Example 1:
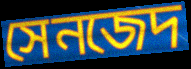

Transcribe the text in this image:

সেনজেদ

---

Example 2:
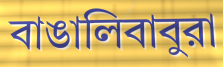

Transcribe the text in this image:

বাঙালিবাবুরা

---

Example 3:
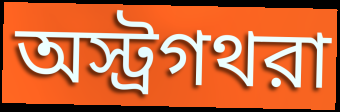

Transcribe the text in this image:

অস্ট্রগথরা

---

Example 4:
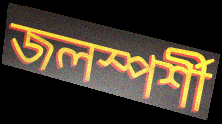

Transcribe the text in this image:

জলস্পর্শী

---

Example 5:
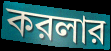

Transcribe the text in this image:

করলার